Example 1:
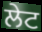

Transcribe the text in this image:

ਲੇਟ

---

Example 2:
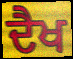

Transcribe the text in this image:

ਦੈਖ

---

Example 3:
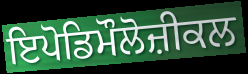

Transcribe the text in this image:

ਇਪੋਡਿਮੌਲੋਜ਼ੀਕਲ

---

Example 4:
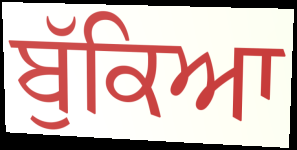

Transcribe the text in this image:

ਬੁੱਕਿਆ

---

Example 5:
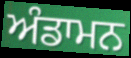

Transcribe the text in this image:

ਅੰਡਾਮਨ